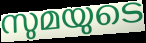
സുമയുടെ